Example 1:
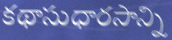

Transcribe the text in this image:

కథాసుధారసాన్ని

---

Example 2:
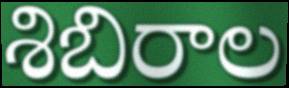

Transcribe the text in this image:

శిబిరాల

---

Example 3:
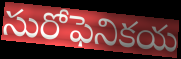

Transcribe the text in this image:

సురోఫెనికయ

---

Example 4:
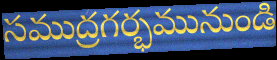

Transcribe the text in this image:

సముద్రగర్భమునుండి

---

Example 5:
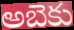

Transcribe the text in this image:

అబెకు